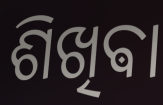
ଶିଖିଵା